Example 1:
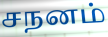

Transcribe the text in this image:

சநனம்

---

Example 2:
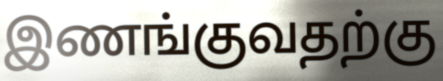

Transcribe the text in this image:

இணங்குவதற்கு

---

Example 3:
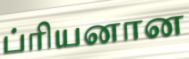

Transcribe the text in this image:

ப்ரியனான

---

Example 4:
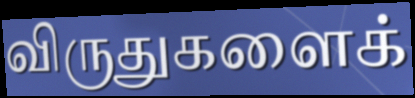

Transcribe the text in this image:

விருதுகளைக்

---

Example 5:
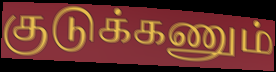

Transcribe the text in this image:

குடுக்கணும்